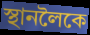
স্থানলৈকে